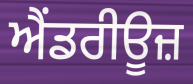
ਐਂਡਰੀਊਜ਼